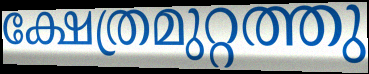
ക്ഷേത്രമുറ്റത്തു